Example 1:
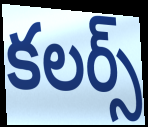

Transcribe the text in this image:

కలర్స్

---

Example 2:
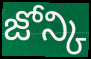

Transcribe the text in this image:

జోన్కి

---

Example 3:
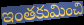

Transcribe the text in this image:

ఇంతకుమించి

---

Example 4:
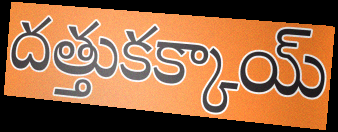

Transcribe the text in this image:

దత్తుకక్కాయ్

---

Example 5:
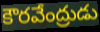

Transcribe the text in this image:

కౌరవేంద్రుడు